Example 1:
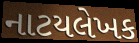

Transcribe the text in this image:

નાટયલેખક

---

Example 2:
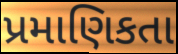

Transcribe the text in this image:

પ્રમાણિકતા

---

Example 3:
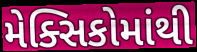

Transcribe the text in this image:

મેક્સિકોમાંથી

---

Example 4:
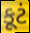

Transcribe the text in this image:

કૂટં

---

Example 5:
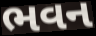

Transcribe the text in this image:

ભવન